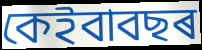
কেইবাবছৰ